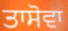
ਤਾਸੋਵਾ